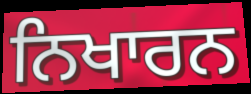
ਨਿਖਾਰਨ